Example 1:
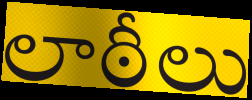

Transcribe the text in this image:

లాఠీలు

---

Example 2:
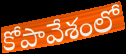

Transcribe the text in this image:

కోపావేశంలో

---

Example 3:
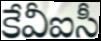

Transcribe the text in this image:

కేవీఐసీ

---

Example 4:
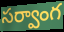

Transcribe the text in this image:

సర్వాంగ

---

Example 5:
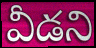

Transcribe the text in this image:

వీడని